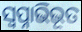
ସ୍ଵପ୍ନାଭିଭୂତ